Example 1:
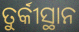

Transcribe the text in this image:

ତୁର୍କୀସ୍ଥାନ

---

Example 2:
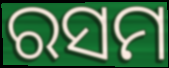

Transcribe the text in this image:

ରସମ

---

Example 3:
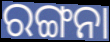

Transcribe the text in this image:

ରଙ୍ଗନା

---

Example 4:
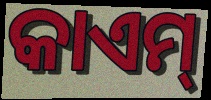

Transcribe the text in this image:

କାଏମ୍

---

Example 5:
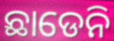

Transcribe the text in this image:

ଛାଡେନି